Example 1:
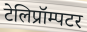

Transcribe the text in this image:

टेलिप्रॉम्पटर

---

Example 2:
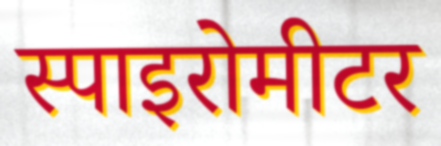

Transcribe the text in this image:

स्पाइरोमीटर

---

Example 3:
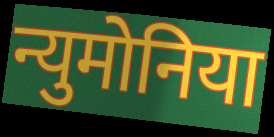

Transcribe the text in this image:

न्युमोनिया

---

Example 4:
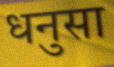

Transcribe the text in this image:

धनुसा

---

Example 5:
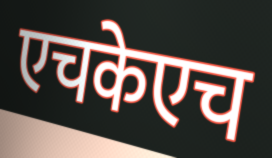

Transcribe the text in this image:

एचकेएच